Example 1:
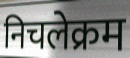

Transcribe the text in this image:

निचलेक्रम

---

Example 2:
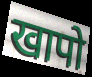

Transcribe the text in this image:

खापो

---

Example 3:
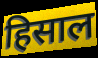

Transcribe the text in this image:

हिसाल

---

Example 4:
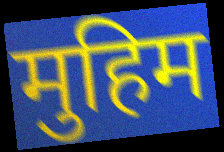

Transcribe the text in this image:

मुहिम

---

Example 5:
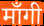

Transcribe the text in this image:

माँगी